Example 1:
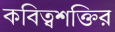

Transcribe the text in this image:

কবিত্বশক্তির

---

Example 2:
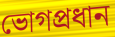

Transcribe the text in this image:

ভোগপ্রধান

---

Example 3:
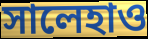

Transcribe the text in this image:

সালেহাও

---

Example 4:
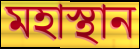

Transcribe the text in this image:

মহাস্থান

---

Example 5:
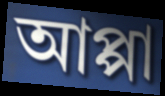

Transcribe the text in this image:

আপ্পা